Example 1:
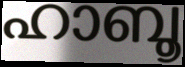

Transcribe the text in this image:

ഹാബൂ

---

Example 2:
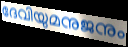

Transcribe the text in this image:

ദേവിയുമനുജനും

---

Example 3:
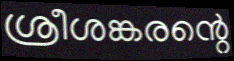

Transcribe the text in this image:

ശ്രീശങ്കരന്റെ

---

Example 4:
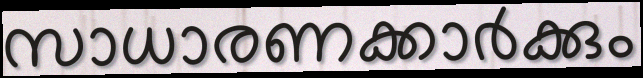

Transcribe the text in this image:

സാധാരണക്കാർക്കും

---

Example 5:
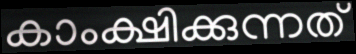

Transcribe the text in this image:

കാംക്ഷിക്കുന്നത്